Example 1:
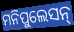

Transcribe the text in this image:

ମନିପୁଲେସନ୍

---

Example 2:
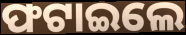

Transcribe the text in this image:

ଫଟାଇଲେ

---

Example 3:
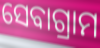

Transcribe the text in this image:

ସେବାଗ୍ରାମ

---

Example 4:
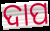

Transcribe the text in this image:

ଦାପ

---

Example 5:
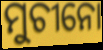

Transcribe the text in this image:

ମୁଚୀନୋ